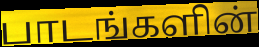
பாடங்களின்